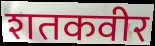
शतकवीर